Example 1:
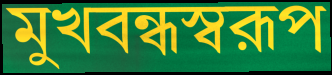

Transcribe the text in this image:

মুখবন্ধস্বরূপ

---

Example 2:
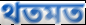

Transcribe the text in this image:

থতমত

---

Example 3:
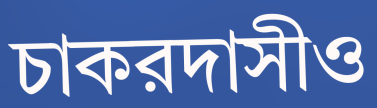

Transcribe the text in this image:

চাকরদাসীও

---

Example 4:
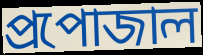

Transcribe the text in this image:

প্রপোজাল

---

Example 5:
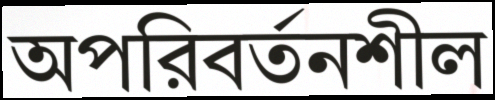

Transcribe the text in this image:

অপরিবর্তনশীল